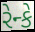
રેન્કે